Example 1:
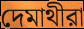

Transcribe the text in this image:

দেমাথীরা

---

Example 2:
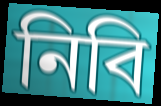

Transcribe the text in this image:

নিবি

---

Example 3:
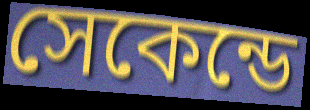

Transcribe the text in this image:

সেকেন্ডে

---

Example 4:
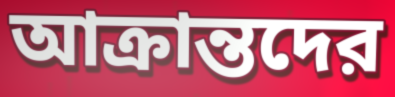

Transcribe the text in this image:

আক্রান্তদের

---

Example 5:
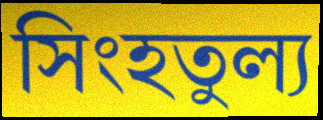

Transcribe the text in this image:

সিংহতুল্য